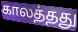
காலத்தது